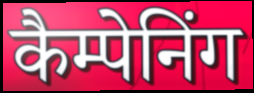
कैम्पेनिंग